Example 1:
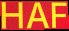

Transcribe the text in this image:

HAF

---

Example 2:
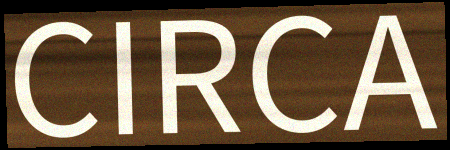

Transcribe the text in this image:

CIRCA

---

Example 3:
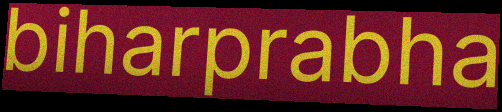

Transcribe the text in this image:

biharprabha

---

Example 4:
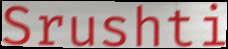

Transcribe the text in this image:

Srushti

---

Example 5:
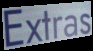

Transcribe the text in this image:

Extras